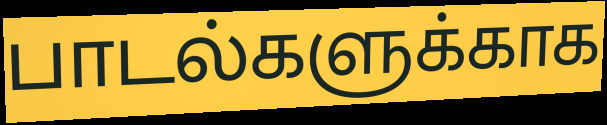
பாடல்களுக்காக